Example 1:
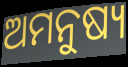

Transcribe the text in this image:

ଅମନୁଷ୍ୟ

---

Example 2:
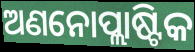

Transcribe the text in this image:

ଅଣନୋପ୍ଲାଷ୍ଟିକ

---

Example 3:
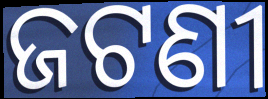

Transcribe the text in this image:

ଜଟଣୀ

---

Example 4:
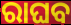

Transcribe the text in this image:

ରାଘବ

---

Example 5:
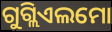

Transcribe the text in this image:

ଗୁଗ୍ଲିଏଲମୋ